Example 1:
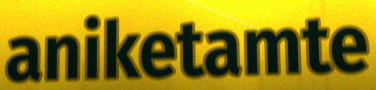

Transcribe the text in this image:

aniketamte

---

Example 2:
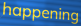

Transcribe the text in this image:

happening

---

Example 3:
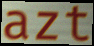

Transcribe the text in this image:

azt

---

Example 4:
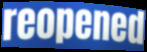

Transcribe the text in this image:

reopened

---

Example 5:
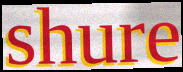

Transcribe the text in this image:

shure